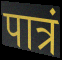
पात्रं